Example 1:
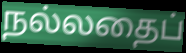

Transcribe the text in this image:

நல்லதைப்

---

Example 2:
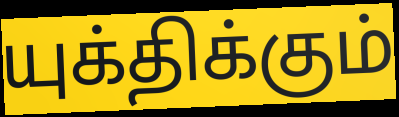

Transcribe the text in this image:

யுக்திக்கும்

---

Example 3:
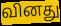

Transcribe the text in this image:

வினது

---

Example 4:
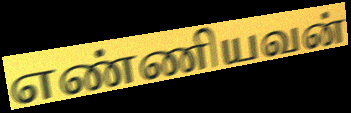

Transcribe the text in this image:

எண்ணியவன்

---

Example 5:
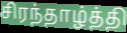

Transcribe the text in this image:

சிரந்தாழ்த்தி